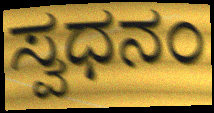
ಸ್ವಧನಂ